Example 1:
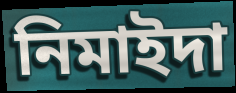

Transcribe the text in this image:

নিমাইদা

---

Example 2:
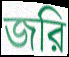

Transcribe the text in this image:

জরি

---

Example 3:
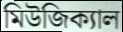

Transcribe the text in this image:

মিউজিক্যাল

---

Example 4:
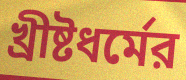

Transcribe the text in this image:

খ্রীষ্টধর্মের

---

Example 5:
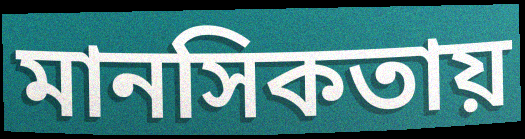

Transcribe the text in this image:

মানসিকতায়